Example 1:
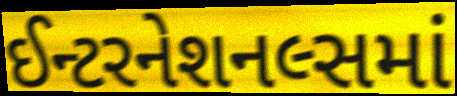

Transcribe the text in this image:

ઈન્ટરનેશનલ્સમાં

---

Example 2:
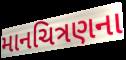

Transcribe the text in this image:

માનચિત્રણના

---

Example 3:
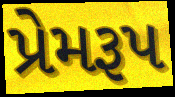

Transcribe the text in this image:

પ્રેમરૂપ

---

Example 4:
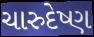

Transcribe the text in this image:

ચારુદેષ્ણ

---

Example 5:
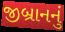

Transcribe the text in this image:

જીબ્રાનનું